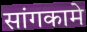
सांगकामे